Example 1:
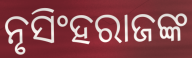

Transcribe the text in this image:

ନୃସିଂହରାଜଙ୍କ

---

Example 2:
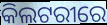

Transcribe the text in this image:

କିଲଟରୀରେ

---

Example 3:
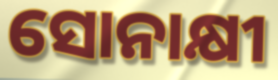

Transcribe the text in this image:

ସୋନାକ୍ଷୀ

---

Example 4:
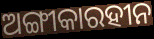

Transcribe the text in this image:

ଅଙ୍ଗୀକାରହୀନ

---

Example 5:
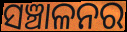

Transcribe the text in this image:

ସଞ୍ଚାଳନର